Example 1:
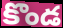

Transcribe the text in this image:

కొండ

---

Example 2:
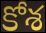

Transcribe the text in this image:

కోశ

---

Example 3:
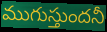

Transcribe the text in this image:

ముగుస్తుందనీ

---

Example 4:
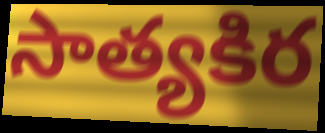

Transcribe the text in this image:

సాత్యకిర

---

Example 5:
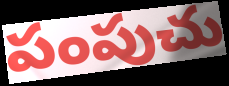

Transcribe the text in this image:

పంపుచు